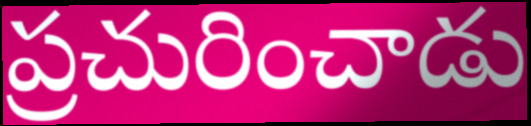
ప్రచురించాడు